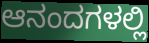
ಆನಂದಗಳಲ್ಲಿ